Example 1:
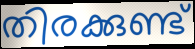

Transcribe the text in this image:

തിരക്കുണ്ട്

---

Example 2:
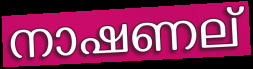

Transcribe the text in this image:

നാഷണല്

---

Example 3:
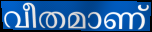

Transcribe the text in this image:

വീതമാണ്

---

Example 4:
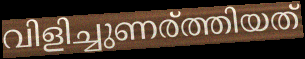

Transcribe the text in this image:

വിളിച്ചുണര്ത്തിയത്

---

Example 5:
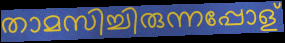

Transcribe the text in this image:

താമസിച്ചിരുന്നപ്പോള്